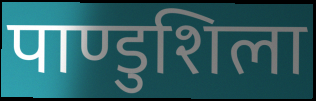
पाण्डुशिला